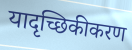
यादृच्छिकीकरण